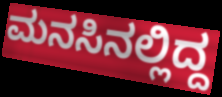
ಮನಸಿನಲ್ಲಿದ್ದ